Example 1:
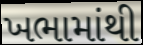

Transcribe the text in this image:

ખભામાંથી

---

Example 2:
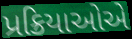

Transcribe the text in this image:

પ્રક્રિયાઓએ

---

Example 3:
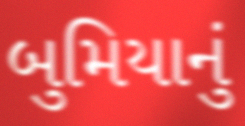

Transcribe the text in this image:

બુમિયાનું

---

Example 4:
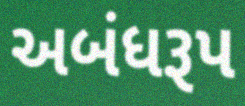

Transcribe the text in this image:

અબંધરૂપ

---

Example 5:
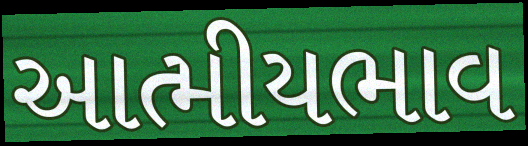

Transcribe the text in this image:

આત્મીયભાવ